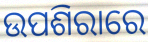
ଉପଶିରାରେ